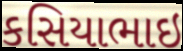
કસિયાભાઇ